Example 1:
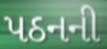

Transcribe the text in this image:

પઠનની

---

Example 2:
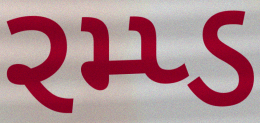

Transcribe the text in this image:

રમ્પ્ડ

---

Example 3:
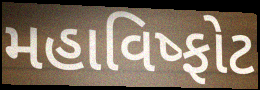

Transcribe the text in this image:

મહાવિષ્ફોટ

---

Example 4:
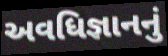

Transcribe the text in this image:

અવધિજ્ઞાનનું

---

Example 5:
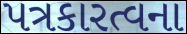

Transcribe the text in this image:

પત્રકારત્વના